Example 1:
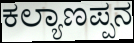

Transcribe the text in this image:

ಕಲ್ಯಾಣಪ್ಪನ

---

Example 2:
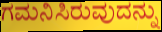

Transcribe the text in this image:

ಗಮನಿಸಿರುವುದನ್ನು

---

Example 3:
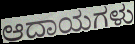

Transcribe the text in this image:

ಆದಾಯಗಳು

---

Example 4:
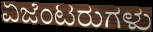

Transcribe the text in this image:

ಏಜೆಂಟರುಗಳು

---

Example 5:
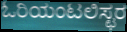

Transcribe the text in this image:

ಓರಿಯಂಟಲಿಸ್ಟರ